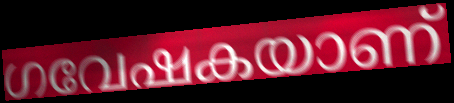
ഗവേഷകയാണ്